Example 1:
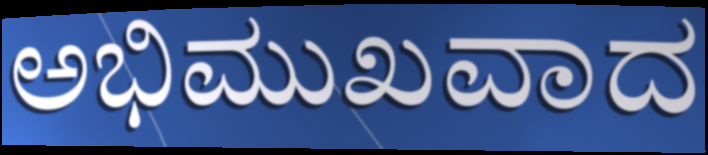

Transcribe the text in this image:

ಅಭಿಮುಖವಾದ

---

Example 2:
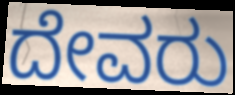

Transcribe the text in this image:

ದೇವರು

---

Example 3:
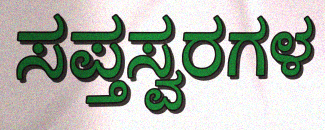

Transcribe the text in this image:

ಸಪ್ತಸ್ವರಗಳ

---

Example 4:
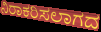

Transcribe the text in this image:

ನಿರಾಕರಿಸಲಾಗದ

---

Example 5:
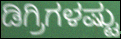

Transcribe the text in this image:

ಡಿಗ್ರಿಗಳಷ್ಟು